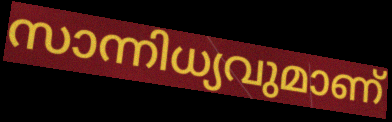
സാന്നിധ്യവുമാണ്